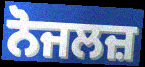
ਨੋਜਲਜ਼